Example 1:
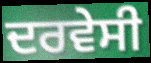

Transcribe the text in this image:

ਦਰਵੇਸੀ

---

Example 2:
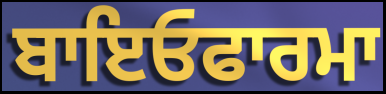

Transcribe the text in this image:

ਬਾਇਓਫਾਰਮਾ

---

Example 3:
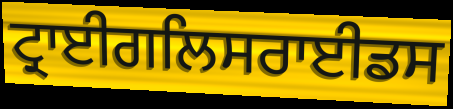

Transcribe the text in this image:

ਟ੍ਰਾਈਗਲਿਸਰਾਈਡਸ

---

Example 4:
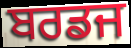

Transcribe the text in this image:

ਬਰਡਜ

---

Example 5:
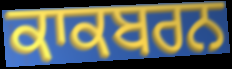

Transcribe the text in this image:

ਕਾਕਬਰਨ